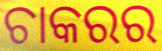
ଚାକରର